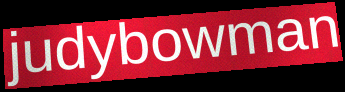
judybowman